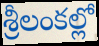
శ్రీలంకల్లో